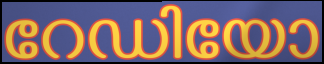
റേഡിയോ